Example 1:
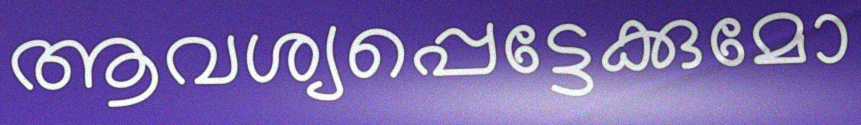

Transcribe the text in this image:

ആവശ്യപ്പെട്ടേക്കുമോ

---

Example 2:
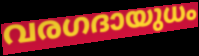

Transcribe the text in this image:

വരഗദായുധം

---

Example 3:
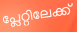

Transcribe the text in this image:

പ്ലേറ്റിലേക്ക്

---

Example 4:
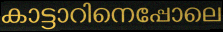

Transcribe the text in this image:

കാട്ടാറിനെപ്പോലെ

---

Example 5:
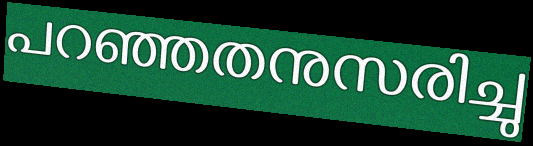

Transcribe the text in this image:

പറഞ്ഞതനുസരിച്ചു